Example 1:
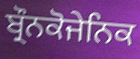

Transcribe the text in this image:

ਬ੍ਰੌਨਕੋਜੇਨਿਕ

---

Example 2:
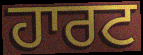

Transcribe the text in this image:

ਹਾਰਟ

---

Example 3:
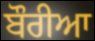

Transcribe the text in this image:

ਬੌਰੀਆ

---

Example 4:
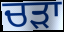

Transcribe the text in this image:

ਚੜਾ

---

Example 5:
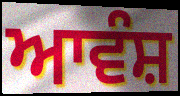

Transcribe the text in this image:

ਆਵੰਸ਼